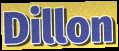
Dillon